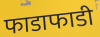
फाडाफाडी